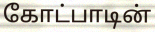
கோட்பாடின்